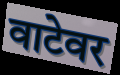
वाटेवर